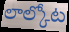
లాల్కోట